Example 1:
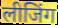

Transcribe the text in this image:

लीजिंग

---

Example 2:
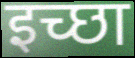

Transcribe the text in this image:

इच्छा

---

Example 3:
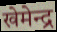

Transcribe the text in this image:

खेमेन्द्र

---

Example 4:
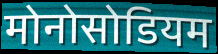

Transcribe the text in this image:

मोनोसोडियम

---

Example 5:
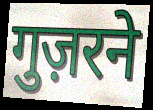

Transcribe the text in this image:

गुज़रने